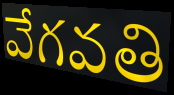
వేగవతి